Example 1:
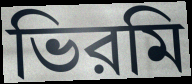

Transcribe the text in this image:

ভিরমি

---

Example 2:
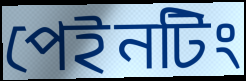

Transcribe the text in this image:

পেইনটিং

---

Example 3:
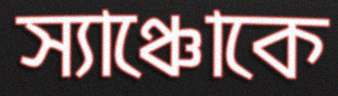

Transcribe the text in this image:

স্যাঞ্চোকে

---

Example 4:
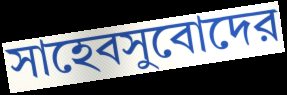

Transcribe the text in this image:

সাহেবসুবোদের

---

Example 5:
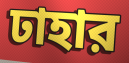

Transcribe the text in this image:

ঢাহার